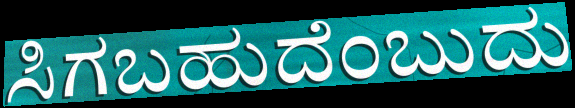
ಸಿಗಬಹುದೆಂಬುದು